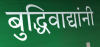
बुद्धिवाद्यांनी